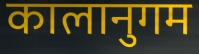
कालानुगम